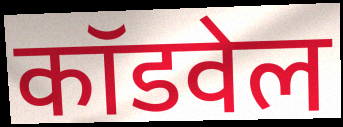
कॉडवेल